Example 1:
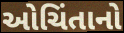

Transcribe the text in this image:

ઓચિંતાનો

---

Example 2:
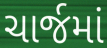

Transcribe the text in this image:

ચાર્જમાં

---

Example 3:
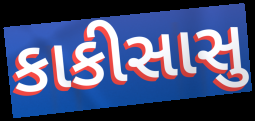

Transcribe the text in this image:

કાકીસાસુ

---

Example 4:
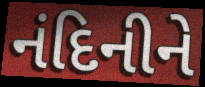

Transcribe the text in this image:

નંદિનીને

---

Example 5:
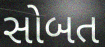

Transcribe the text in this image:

સોબત